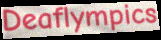
Deaflympics